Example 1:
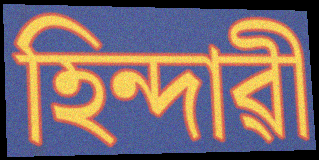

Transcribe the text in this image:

হিন্দাৱী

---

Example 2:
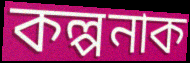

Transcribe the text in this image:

কল্পনাক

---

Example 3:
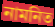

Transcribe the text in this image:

নামনিত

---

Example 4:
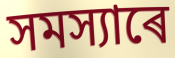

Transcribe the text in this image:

সমস্যাৰে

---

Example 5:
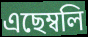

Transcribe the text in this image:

এছেম্বলি